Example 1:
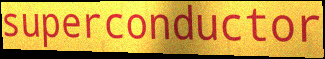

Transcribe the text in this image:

superconductor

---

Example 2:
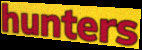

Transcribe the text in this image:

hunters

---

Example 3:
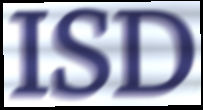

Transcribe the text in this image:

ISD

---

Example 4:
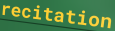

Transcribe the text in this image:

recitation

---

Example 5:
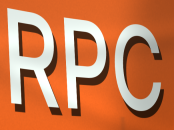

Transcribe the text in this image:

RPC